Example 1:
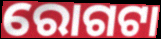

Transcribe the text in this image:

ରୋଗଟା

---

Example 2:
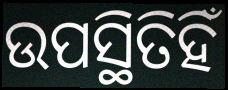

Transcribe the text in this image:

ଉପସ୍ଥିତିହିଁ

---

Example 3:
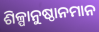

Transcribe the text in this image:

ଶିଳ୍ପାନୁଷ୍ଠାନମାନ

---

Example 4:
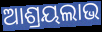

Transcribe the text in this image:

ଆଶ୍ରୟଲାଭ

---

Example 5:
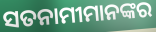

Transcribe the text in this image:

ସତନାମୀମାନଙ୍କର